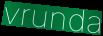
vrunda